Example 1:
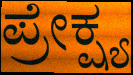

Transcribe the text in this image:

ಪ್ರೇಕ್ಷ್ಯ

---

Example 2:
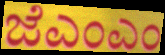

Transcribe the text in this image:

ಜೆಎಂಎಂ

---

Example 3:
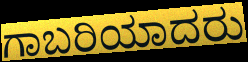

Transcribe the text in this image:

ಗಾಬರಿಯಾದರು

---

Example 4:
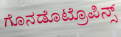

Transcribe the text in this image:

ಗೊನಡೊಟ್ರೊಪಿನ್ಸ್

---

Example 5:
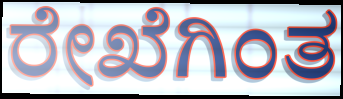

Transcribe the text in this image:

ರೇಖೆಗಿಂತ